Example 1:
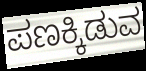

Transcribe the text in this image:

ಪಣಕ್ಕಿಡುವ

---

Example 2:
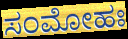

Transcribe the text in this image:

ಸಂಮೋಹಃ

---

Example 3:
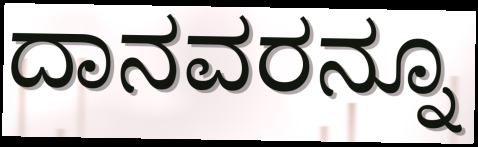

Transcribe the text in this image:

ದಾನವರನ್ನೂ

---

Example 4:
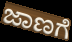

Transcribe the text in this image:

ಜಾಣಗೆ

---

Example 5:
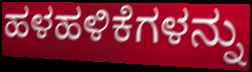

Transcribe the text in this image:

ಹಳಹಳಿಕೆಗಳನ್ನು